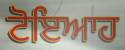
ਟੋਇਆਹ